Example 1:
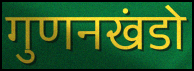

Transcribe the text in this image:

गुणनखंडो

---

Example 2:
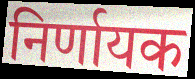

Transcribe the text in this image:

निर्णायक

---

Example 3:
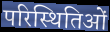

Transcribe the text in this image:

परिस्थितिओं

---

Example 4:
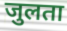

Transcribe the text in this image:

जुलता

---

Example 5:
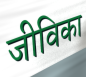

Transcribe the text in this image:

जीविका